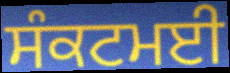
ਸੰਕਟਮਈ